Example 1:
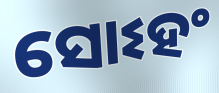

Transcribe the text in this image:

ସୋଽହଂ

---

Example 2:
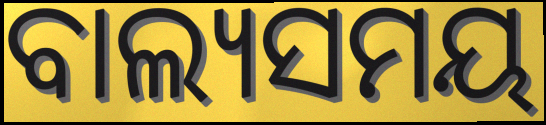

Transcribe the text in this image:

ବାଲ୍ୟସମୟ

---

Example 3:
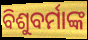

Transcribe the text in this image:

ବିଶୁବର୍ମାଙ୍କ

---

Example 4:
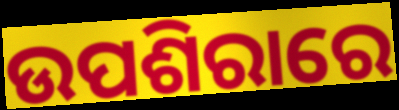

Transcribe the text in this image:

ଉପଶିରାରେ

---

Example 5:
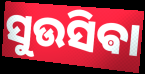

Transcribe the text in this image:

ସୁଉସିଵା